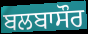
ਬਲਬਾਸੌਰ